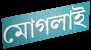
মোগলাই